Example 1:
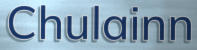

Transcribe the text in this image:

Chulainn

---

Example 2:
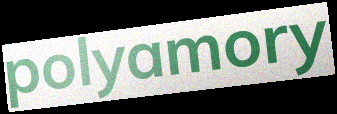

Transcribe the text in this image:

polyamory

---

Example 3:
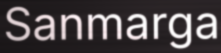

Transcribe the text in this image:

Sanmarga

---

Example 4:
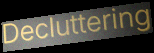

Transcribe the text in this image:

Decluttering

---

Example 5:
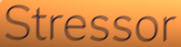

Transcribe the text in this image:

Stressor